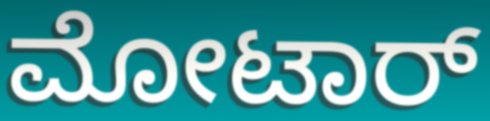
ಮೋಟಾರ್